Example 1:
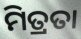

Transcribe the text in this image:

ମିତ୍ରତା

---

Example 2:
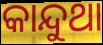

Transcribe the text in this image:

କାନ୍ଦୁଥା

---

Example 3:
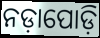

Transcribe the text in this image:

ନଡ଼ାପୋଡ଼ି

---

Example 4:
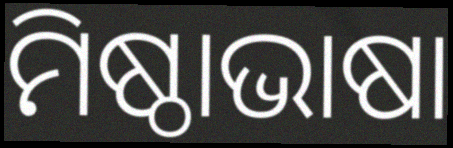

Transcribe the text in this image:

ମିଷ୍ଠାଭାଷା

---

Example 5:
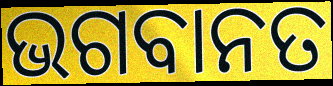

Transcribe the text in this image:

ଭଗବାନତ